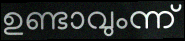
ഉണ്ടാവുംന്ന്